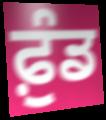
ਫ਼ੁੰਡ